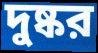
দুষ্কর